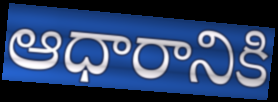
ఆధారానికి